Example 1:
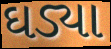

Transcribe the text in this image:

ઘડ્યા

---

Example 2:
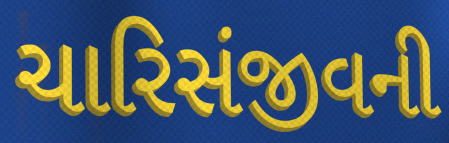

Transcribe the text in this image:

ચારિસંજીવની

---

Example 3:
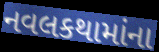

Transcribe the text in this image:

નવલકથામાંના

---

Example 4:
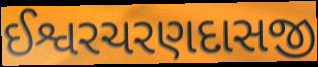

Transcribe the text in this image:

ઈશ્વરચરણદાસજી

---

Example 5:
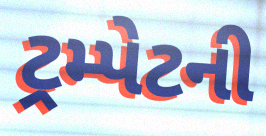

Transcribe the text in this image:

ટ્રમ્પેટની